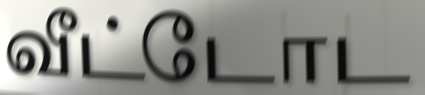
வீட்டோட